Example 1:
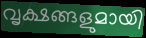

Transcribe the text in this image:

വൃക്ഷങ്ങളുമായി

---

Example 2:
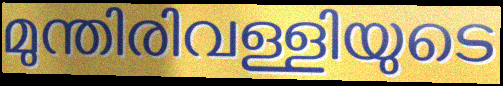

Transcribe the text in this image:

മുന്തിരിവള്ളിയുടെ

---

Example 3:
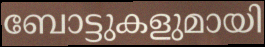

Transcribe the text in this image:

ബോട്ടുകളുമായി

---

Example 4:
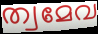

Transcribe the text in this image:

ത്വമേവ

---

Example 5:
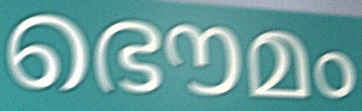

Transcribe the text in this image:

ഭൌമം